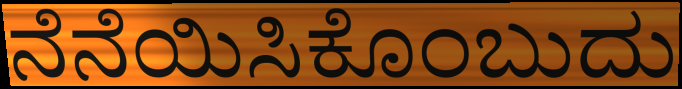
ನೆನೆಯಿಸಿಕೊಂಬುದು